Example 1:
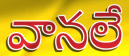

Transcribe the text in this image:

వానలే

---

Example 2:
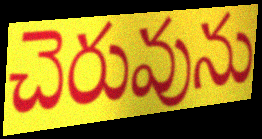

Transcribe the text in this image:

చెరువును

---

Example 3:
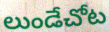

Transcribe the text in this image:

లుండేచోట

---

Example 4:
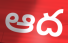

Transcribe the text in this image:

ఆద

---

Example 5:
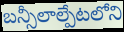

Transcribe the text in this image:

బన్సీలాల్పేటలోని